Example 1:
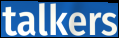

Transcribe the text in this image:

talkers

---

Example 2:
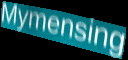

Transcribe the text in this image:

Mymensing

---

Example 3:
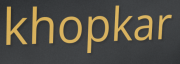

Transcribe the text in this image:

khopkar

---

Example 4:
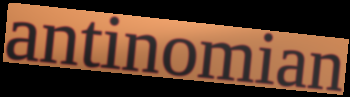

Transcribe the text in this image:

antinomian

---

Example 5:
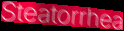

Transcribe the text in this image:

Steatorrhea